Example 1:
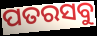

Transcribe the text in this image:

ପତରସବୁ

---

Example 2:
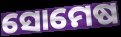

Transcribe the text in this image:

ସୋମେଷ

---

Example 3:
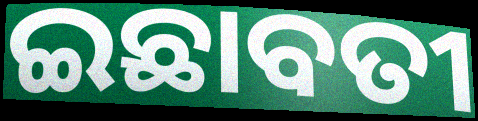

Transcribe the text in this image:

ଇଛାବତୀ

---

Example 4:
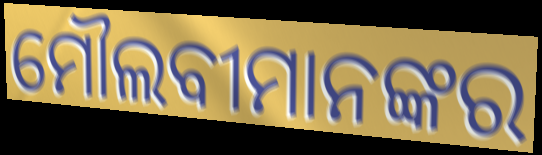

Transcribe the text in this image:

ମୌଲବୀମାନଙ୍କର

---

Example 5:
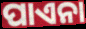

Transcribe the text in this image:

ପାଏନା